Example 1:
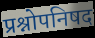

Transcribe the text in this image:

प्रश्नोपनिषद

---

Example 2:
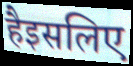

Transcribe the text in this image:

हैइसलिए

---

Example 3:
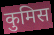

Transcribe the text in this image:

कुमिस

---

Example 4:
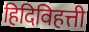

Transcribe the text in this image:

हिदिविहत्ती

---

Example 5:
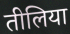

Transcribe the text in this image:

तीलिया